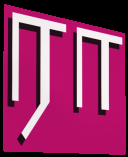
ரா